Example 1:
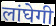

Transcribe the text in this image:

लांघेगी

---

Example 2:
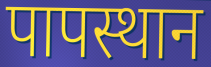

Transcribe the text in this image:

पापस्थान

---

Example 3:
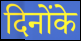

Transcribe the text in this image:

दिनोंके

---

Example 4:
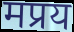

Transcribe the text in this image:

मप्रय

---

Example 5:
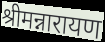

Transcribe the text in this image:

श्रीमन्नारायण